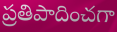
ప్రతిపాదించగా